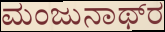
ಮಂಜುನಾಥ್‌ರ